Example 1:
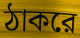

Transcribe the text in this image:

ঠাকরে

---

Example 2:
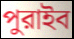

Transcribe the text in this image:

পুরাইব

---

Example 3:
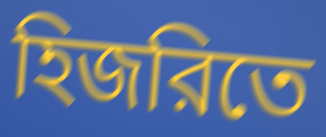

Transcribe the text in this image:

হিজরিতে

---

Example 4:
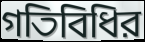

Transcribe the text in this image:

গতিবিধির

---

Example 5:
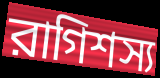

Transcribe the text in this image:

রাগিশস্য